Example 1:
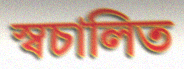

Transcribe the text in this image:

স্বচালিত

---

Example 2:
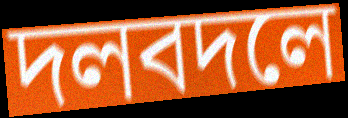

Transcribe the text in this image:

দলবদলে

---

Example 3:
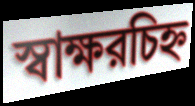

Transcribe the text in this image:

স্বাক্ষরচিহ্ন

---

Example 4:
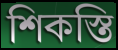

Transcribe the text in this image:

শিকস্তি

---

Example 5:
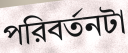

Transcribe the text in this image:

পরিবর্তনটা